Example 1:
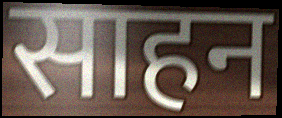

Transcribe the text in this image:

साहन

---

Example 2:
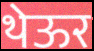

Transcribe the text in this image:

थेऊर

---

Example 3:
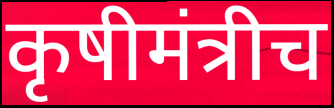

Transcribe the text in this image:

कृषीमंत्रीच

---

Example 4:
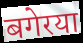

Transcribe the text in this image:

बगेरया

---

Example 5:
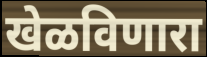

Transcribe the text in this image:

खेळविणारा